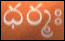
ధర్మః